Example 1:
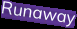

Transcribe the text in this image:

Runaway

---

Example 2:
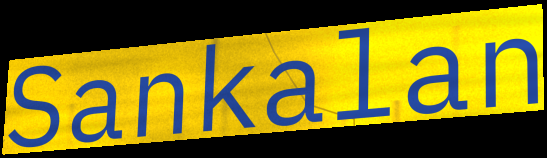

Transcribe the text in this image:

Sankalan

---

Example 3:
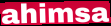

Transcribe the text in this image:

ahimsa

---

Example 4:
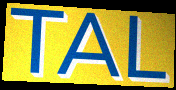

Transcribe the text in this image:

TAL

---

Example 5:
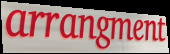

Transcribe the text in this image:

arrangment